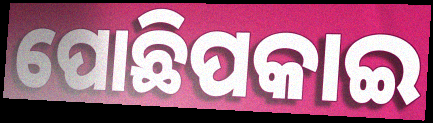
ପୋଛିପକାଇ